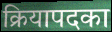
क्रियापदका